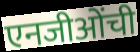
एनजीओंची